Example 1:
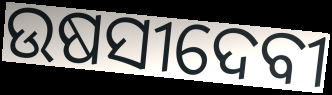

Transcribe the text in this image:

ଉଷସୀଦେବୀ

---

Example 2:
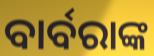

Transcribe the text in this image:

ବାର୍ବରାଙ୍କ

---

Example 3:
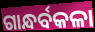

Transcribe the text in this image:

ଗାନ୍ଧର୍ବକଳା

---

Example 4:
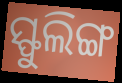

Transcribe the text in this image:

ସ୍ଫୁଲିଙ୍ଗ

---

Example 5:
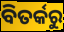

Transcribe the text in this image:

ବିତର୍କରୁ